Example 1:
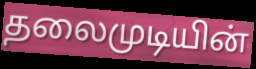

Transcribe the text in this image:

தலைமுடியின்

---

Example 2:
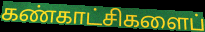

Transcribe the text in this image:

கண்காட்சிகளைப்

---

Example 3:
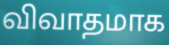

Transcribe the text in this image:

விவாதமாக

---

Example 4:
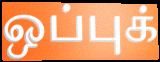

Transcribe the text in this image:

ஒப்புக்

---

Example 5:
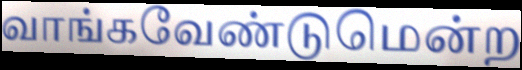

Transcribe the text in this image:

வாங்கவேண்டுமென்ற